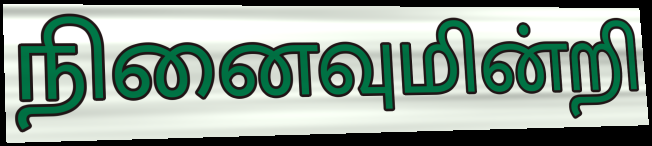
நினைவுமின்றி